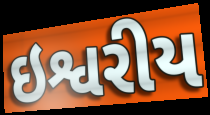
ઇશ્વરીય